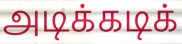
அடிக்கடிக்